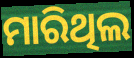
ମାରିଥିଲ